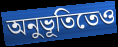
অনুভূতিতেও